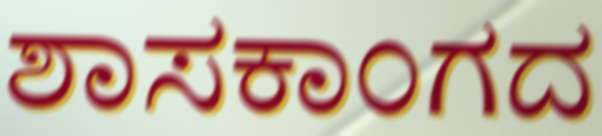
ಶಾಸಕಾಂಗದ